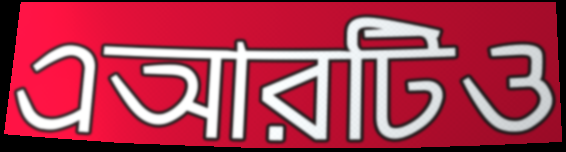
এআরটিও